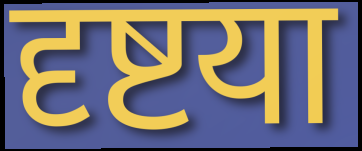
दृष्टया